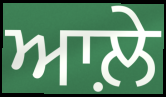
ਆਲ਼ੇ